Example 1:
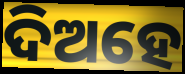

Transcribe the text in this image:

ଦିଅହେ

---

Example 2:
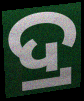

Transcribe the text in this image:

ଦ୍ର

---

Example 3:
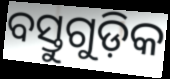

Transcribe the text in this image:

ବସ୍ତୁଗୁଡ଼ିକ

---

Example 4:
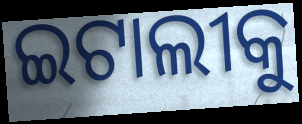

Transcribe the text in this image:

ଇଟାଲୀକୁ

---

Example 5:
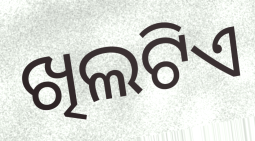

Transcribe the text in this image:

ଖିଲଟିଏ